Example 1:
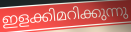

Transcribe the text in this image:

ഇളക്കിമറിക്കുന്നു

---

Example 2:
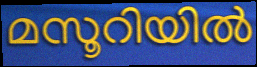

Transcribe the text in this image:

മസൂറിയിൽ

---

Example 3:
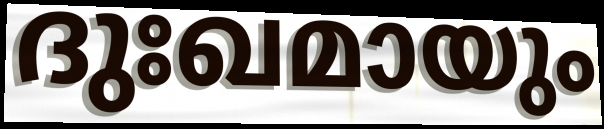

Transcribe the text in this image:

ദുഃഖമായും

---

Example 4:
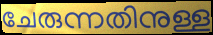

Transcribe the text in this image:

ചേരുന്നതിനുള്ള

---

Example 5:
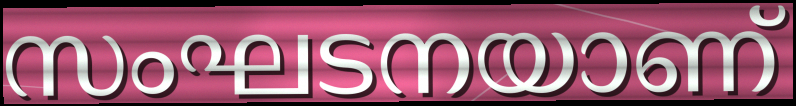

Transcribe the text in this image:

സംഘടനയാണ്